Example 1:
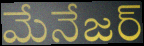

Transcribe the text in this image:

మేనేజర్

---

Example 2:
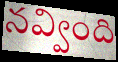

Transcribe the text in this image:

నవ్వింది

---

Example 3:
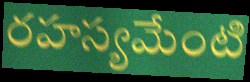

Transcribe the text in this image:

రహస్యమేంటి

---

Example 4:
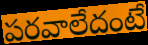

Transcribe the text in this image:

పరవాలేదంటే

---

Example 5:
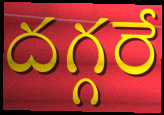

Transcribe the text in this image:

దగ్గరే